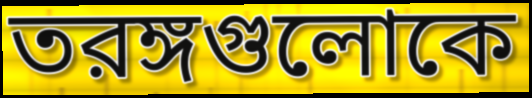
তরঙ্গগুলোকে